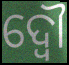
ଦ୍ଵୌ